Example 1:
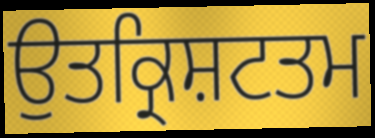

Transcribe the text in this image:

ਉਤਕ੍ਰਿਸ਼ਟਤਮ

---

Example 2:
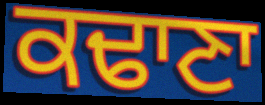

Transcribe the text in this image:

ਕਢਾਣਾ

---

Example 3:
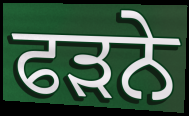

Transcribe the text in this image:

ਫੜਨੇ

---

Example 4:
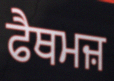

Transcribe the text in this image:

ਫੈਥਮਜ਼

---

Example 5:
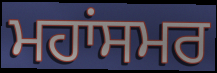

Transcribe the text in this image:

ਮਹਾਂਸਮਰ